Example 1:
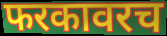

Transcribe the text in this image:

फरकावरच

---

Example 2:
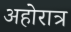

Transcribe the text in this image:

अहोरात्र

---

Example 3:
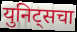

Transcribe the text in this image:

युनिट्सचा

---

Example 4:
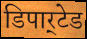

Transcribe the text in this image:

डिपार्टेड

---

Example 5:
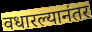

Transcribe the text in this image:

वधारल्यानंतर